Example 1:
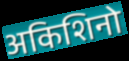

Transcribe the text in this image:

अकिशिनो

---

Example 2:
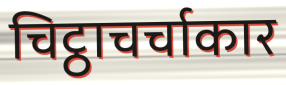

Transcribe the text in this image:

चिट्ठाचर्चाकार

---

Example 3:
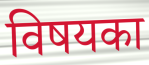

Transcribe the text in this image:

विषयका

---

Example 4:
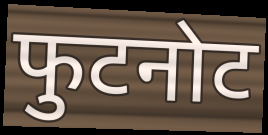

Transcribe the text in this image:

फुटनोट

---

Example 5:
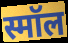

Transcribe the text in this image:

स्मॉल